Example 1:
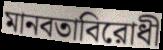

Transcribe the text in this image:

মানবতাবিরোধী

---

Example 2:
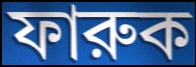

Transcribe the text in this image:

ফারুক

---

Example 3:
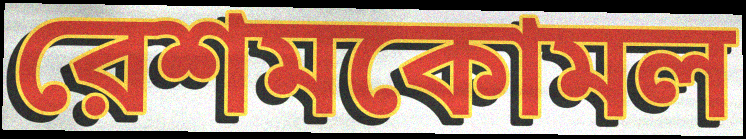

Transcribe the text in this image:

রেশমকোমল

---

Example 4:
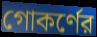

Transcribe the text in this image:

গোকর্ণের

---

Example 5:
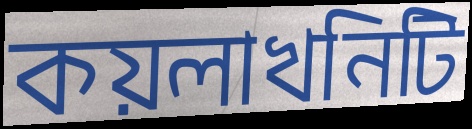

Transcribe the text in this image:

কয়লাখনিটি